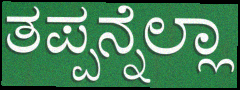
ತಪ್ಪನ್ನೆಲ್ಲಾ